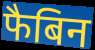
फैबिन